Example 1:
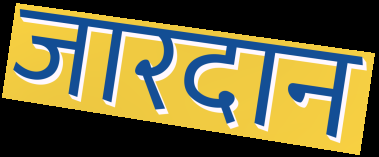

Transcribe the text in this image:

जारदान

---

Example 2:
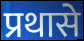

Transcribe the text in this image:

प्रथासे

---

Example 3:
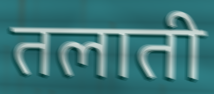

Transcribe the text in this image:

तलाती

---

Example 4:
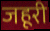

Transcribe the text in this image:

जहूरी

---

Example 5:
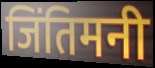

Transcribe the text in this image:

जिंतिमनी